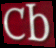
Cb